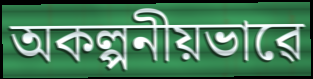
অকল্পনীয়ভাৱে